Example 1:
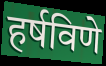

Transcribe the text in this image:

हर्षविणे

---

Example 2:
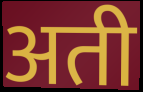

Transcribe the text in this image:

अती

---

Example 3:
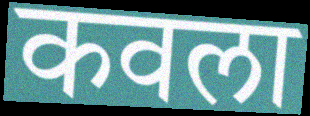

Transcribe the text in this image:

कवला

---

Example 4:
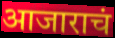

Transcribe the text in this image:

आजाराचं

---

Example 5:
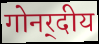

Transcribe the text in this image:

गोनर्दीय